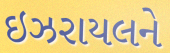
ઇઝરાયલને